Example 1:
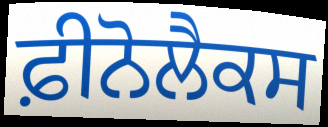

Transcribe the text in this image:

ਫ਼ੀਨੋਲੈਕਸ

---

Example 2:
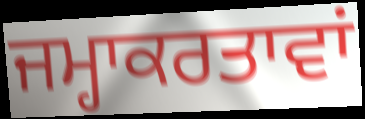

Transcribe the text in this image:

ਜਮ੍ਹਾਕਰਤਾਵਾਂ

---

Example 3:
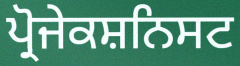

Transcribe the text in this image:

ਪ੍ਰੋਜੇਕਸ਼ਨਿਸਟ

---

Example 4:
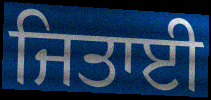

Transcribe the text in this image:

ਜਿਤਾਈ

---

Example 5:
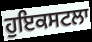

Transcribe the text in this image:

ਹੁਇਕਸਟਲਾ